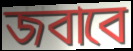
জবাবে